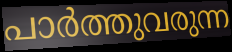
പാർത്തുവരുന്ന